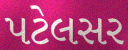
પટેલસર